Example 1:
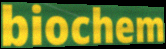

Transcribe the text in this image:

biochem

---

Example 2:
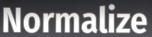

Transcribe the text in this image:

Normalize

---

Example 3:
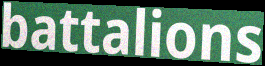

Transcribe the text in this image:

battalions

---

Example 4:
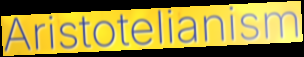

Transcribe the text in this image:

Aristotelianism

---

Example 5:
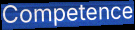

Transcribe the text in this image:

Competence